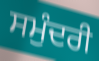
ਸਮੁੰਦਰੀ